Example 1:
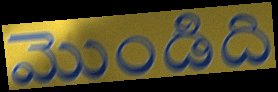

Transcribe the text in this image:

మొండిది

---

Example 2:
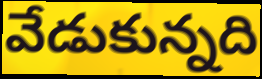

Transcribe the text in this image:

వేడుకున్నది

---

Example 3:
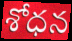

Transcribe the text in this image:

శోధన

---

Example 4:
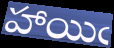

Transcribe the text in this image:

హాయిఁ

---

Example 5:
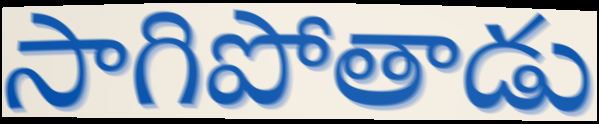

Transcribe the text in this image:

సాగిపోతాడు